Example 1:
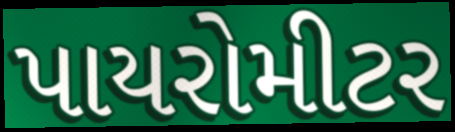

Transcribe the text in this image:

પાયરોમીટર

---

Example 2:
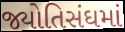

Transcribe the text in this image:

જ્યોતિસંઘમાં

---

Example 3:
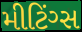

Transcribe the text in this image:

મીટિંગ્સ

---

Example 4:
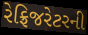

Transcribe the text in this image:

રેફ્રિજરેટરની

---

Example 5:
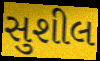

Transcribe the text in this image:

સુશીલ